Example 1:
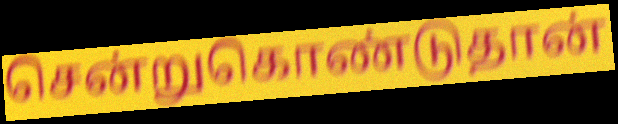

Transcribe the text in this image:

சென்றுகொண்டுதான்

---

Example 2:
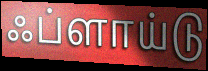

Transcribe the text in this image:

ஃப்ளாய்டு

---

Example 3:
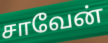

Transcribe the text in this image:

சாவேன்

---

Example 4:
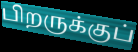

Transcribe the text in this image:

பிறருக்குப்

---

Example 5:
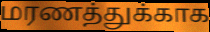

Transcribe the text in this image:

மரணத்துக்காக